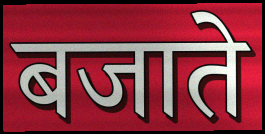
बजाते